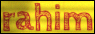
rahim